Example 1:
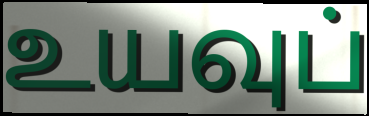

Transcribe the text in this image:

உயவுப்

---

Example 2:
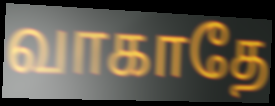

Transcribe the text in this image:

வாகாதே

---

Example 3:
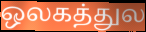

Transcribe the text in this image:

ஒலகத்துல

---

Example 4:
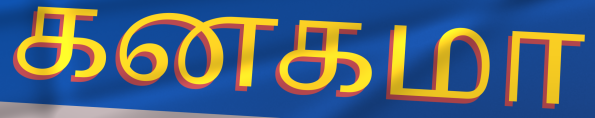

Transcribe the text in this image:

கனகமா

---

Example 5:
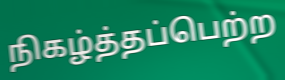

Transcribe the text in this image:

நிகழ்த்தப்பெற்ற